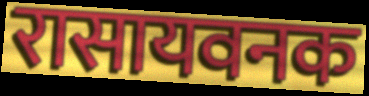
रासायवनक